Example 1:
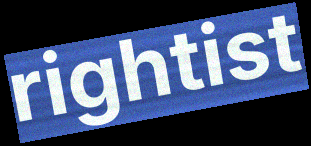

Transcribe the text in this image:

rightist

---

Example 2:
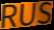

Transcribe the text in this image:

RUS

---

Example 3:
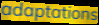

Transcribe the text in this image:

adaptations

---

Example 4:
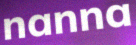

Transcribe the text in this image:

nanna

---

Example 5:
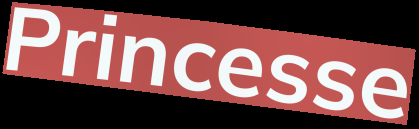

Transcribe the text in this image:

Princesse